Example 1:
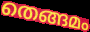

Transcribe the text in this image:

തെങ്ങമം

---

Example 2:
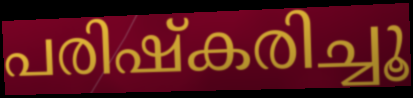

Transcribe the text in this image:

പരിഷ്കരിച്ചൂ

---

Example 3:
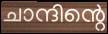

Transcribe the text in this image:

ചാന്ദിന്റെ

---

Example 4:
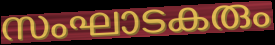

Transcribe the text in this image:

സംഘാടകരും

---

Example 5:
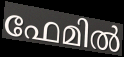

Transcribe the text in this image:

ഫേമിൽ